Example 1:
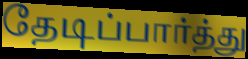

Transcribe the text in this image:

தேடிப்பார்த்து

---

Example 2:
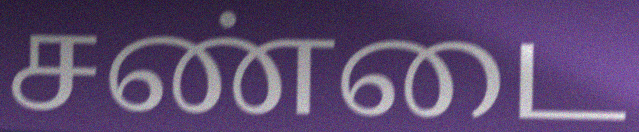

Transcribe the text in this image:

சண்டை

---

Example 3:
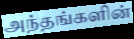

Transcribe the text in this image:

அந்தங்களின்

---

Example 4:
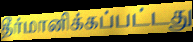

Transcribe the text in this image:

தீர்மானிக்கப்பட்டது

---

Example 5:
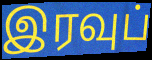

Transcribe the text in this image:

இரவுப்